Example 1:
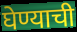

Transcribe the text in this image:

घेण्याची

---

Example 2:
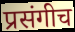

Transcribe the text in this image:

प्रसंगीच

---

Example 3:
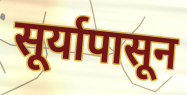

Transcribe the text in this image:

सूर्यापासून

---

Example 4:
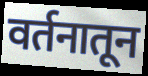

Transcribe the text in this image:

वर्तनातून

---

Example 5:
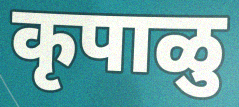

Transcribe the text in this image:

कृपाळु